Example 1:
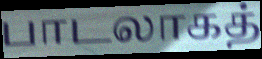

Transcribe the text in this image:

பாடலாகத்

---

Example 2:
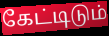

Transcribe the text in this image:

கேட்டிடும்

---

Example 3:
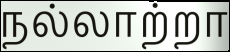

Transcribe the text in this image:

நல்லாற்றா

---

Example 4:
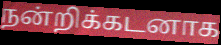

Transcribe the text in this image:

நன்றிக்கடனாக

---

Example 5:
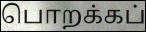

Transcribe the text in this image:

பொறக்கப்